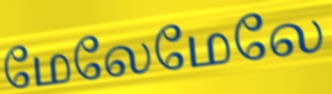
மேலேமேலே